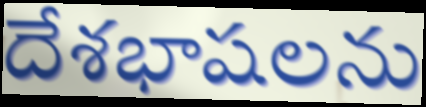
దేశభాషలను